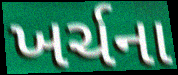
ખર્ચના